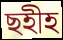
ছহীহ